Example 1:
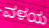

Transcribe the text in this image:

ವಳಯ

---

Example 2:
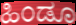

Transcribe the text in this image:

ಹಿಂಡೂ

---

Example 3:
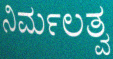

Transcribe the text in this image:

ನಿರ್ಮಲತ್ವ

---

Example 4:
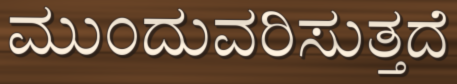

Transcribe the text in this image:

ಮುಂದುವರಿಸುತ್ತದೆ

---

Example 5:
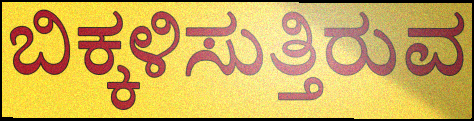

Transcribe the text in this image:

ಬಿಕ್ಕಳಿಸುತ್ತಿರುವ